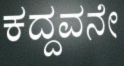
ಕದ್ದವನೇ